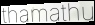
thamathu